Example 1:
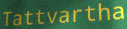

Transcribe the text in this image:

Tattvartha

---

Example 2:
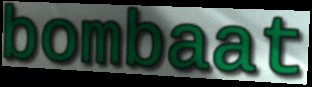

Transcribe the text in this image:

bombaat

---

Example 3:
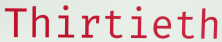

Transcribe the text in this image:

Thirtieth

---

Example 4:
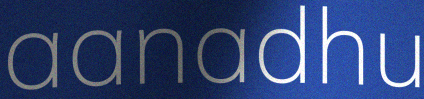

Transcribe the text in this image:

aanadhu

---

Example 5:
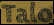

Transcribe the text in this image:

Talo